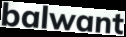
balwant